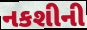
નકશીની